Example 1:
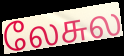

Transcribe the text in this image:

லேசுல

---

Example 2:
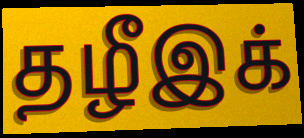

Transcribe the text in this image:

தழீஇக்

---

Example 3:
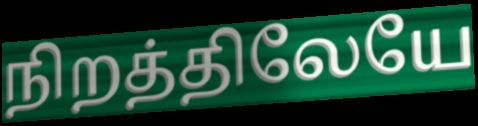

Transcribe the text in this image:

நிறத்திலேயே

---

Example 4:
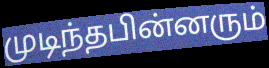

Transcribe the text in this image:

முடிந்தபின்னரும்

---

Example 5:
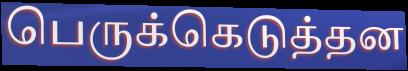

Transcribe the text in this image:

பெருக்கெடுத்தன